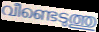
വീണ്ടെടുത്തു